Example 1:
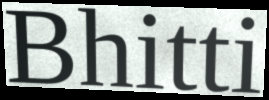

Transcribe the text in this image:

Bhitti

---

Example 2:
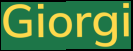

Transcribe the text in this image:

Giorgi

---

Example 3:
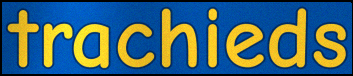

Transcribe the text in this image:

trachieds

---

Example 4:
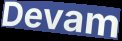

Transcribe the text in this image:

Devam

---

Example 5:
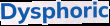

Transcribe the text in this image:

Dysphoric